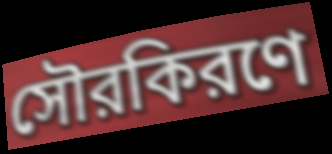
সৌরকিরণে